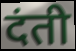
दंती